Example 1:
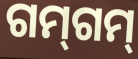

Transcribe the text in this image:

ଗମ୍‍ଗମ୍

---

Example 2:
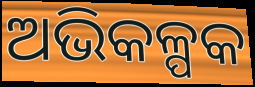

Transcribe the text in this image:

ଅଭିକଳ୍ପକ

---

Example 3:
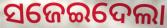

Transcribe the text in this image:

ସଜେଇଦେଲା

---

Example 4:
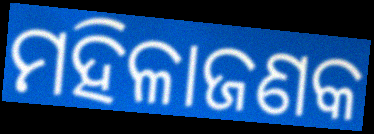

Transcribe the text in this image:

ମହିଳାଜଣକ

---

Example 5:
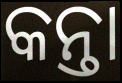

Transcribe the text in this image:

କନ୍ତା